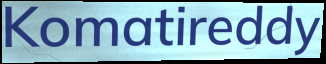
Komatireddy